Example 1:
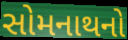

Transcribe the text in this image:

સોમનાથનો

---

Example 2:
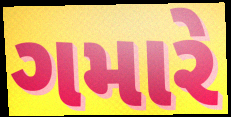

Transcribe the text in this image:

ગમારે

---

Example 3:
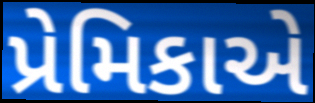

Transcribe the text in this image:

પ્રેમિકાએ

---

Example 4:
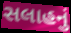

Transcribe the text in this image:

સલાહનું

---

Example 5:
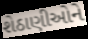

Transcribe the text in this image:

શેઠાણીઓને